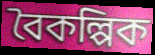
বৈকল্পিক